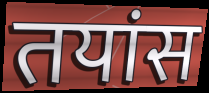
तयांस